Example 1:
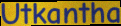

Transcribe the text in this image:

Utkantha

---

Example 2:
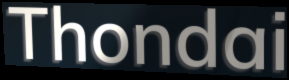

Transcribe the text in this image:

Thondai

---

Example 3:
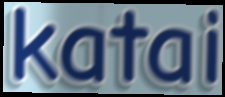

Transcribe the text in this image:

katai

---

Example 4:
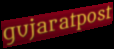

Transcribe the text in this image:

gujaratpost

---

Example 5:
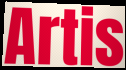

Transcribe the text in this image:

Artis